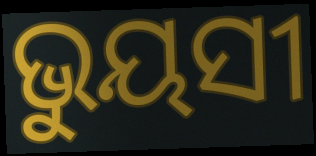
ଭୁୟସୀ